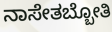
ನಾಸೇತಬ್ಬೋತಿ